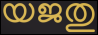
യജതു